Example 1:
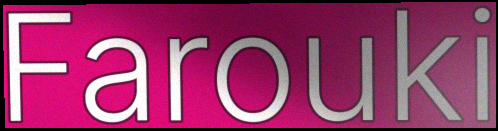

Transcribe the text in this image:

Farouki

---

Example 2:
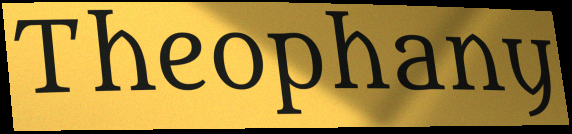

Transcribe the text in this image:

Theophany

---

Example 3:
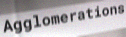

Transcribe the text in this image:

Agglomerations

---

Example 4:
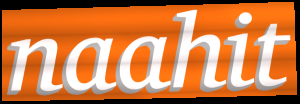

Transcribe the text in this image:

naahit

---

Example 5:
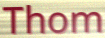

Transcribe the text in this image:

Thom